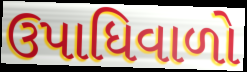
ઉપાધિવાળો